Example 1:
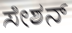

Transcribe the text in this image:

ಸೇಶನ್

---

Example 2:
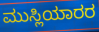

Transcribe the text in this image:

ಮುಸ್ಲಿಯಾರರ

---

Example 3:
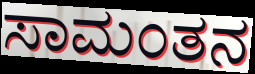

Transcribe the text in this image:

ಸಾಮಂತನ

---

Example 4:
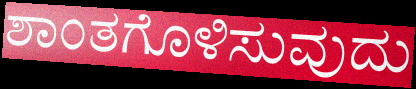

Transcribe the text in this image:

ಶಾಂತಗೊಳಿಸುವುದು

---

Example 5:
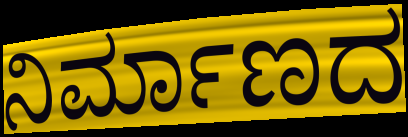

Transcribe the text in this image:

ನಿರ್ಮಾಣದ